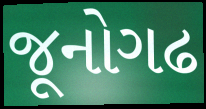
જૂનોગઢ